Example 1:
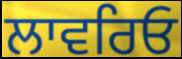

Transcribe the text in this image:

ਲਾਵਰਿਓ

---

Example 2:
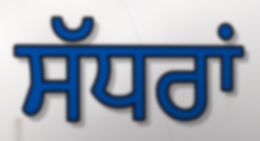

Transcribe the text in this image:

ਸੱਧਰਾਂ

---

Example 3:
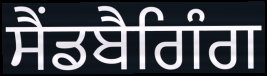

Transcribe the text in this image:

ਸੈਂਡਬੈਗਿੰਗ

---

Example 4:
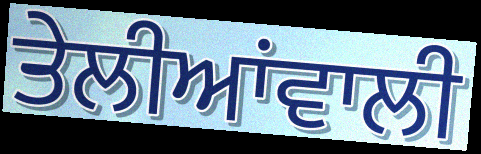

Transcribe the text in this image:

ਤੇਲੀਆਂਵਾਲੀ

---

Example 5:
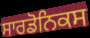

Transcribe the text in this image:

ਸਾਰਡੋਨਿਕਸ